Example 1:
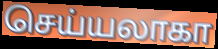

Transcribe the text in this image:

செய்யலாகா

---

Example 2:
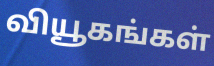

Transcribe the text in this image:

வியூகங்கள்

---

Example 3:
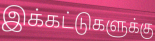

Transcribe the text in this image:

இக்கட்டுகளுக்கு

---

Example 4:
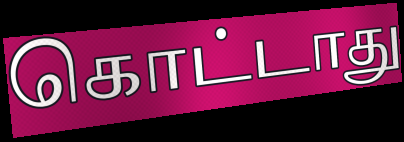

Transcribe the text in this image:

கொட்டாது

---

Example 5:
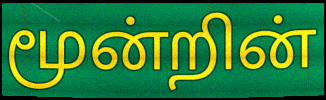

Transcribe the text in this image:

மூன்றின்